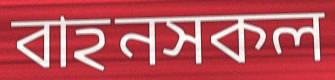
বাহনসকল